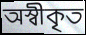
অস্বীকৃত